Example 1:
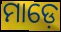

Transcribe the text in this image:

ମାଡ଼େ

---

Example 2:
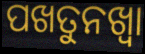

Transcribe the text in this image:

ପଖତୁନଖ୍ୱା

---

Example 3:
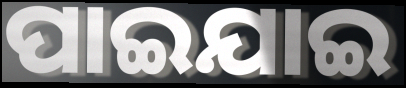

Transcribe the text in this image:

ପାଇଯାଇ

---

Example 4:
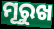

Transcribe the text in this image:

ମୂରୁଖ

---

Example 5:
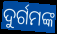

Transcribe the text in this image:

ଦୁର୍ଗମଙ୍କ